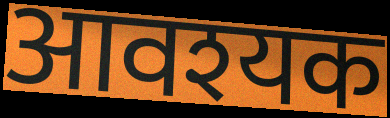
आवश्‍यक